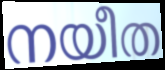
നയീത